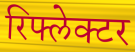
रिफ्लेक्टर